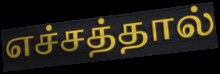
எச்சத்தால்